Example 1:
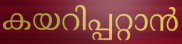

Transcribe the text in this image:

കയറിപ്പറ്റാൻ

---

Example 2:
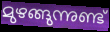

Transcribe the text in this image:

മുഴങ്ങുന്നുണ്ട്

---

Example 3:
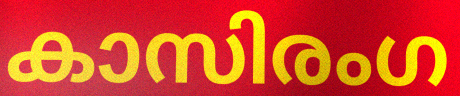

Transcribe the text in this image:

കാസിരംഗ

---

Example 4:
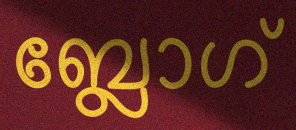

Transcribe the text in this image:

ബ്ലോഗ്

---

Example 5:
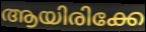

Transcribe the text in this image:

ആയിരിക്കേ